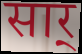
सार्